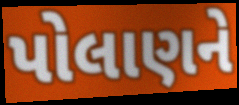
પોલાણને